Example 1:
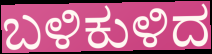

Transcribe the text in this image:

ಬಳಿಕುಳಿದ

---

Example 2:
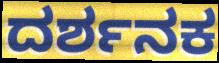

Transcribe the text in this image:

ದರ್ಶನಕ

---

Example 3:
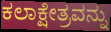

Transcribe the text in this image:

ಕಲಾಕ್ಷೇತ್ರವನ್ನು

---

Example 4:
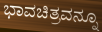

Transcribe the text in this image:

ಭಾವಚಿತ್ರವನ್ನೂ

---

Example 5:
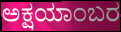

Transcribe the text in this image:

ಅಕ್ಷಯಾಂಬರ